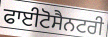
ਫਾਈਟੋਸੈਨਟਰੀ